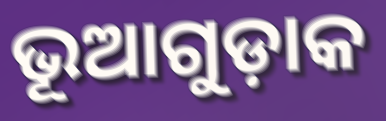
ଭୂଆଗୁଡ଼ାକ